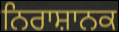
ਨਿਰਾਸ਼ਾਨਕ